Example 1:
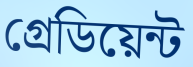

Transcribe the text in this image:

গ্রেডিয়েন্ট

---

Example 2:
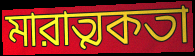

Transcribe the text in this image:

মারাত্মকতা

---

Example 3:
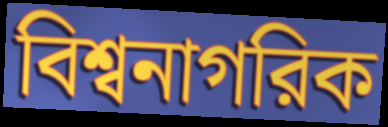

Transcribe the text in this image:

বিশ্বনাগরিক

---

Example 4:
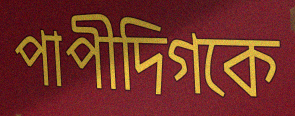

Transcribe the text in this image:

পাপীদিগকে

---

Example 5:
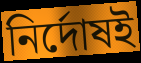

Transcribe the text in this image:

নির্দোষই